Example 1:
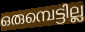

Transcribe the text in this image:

ഒരുമ്പെട്ടില്ല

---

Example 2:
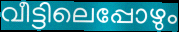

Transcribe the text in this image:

വീട്ടിലെപ്പോഴും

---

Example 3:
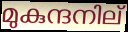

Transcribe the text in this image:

മുകുന്ദനില്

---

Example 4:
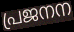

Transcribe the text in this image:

പ്രജനന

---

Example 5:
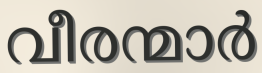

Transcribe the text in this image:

വീരന്മാർ